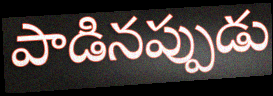
పాడినప్పుడు